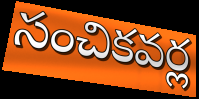
సంచికవర్ల